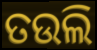
ତଉଲି